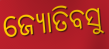
ଜ୍ୟୋତିବସୁ